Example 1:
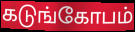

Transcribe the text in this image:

கடுங்கோபம்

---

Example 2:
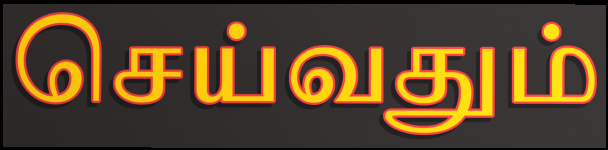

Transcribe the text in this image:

செய்வதும்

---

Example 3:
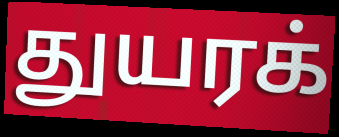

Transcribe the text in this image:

துயரக்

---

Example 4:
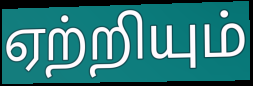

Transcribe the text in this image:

ஏற்றியும்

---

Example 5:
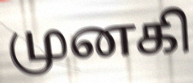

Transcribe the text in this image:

முனகி